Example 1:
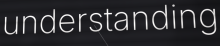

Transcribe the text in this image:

understanding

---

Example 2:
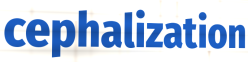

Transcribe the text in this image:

cephalization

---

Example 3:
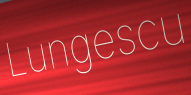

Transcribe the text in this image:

Lungescu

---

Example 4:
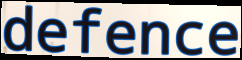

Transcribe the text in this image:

defence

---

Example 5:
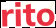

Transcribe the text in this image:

rito